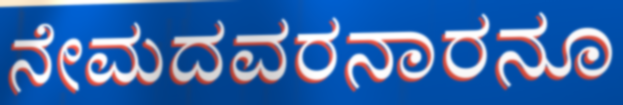
ನೇಮದವರನಾರನೂ